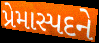
પ્રેમાસ્પદને